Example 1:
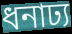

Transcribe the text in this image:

ধনাঢ্য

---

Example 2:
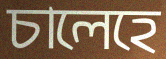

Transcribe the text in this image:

চালেহে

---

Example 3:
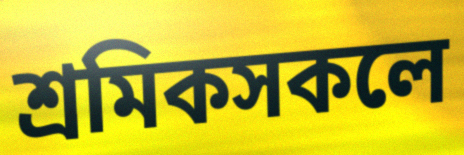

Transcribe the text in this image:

শ্ৰমিকসকলে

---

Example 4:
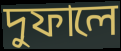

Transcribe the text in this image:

দুফালে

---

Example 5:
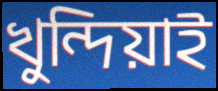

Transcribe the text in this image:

খুন্দিয়াই